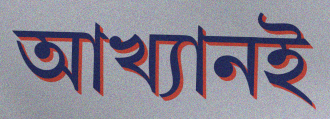
আখ্যানই